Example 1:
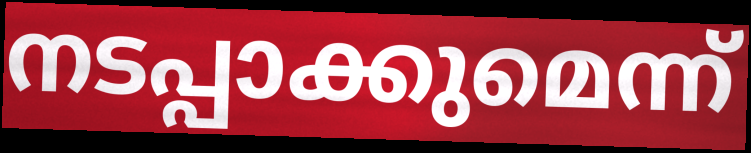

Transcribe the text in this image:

നടപ്പാക്കുമെന്ന്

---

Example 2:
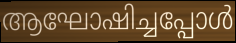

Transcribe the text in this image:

ആഘോഷിച്ചപ്പോൾ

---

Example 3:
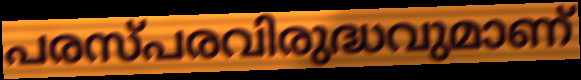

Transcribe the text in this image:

പരസ്പരവിരുദ്ധവുമാണ്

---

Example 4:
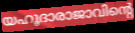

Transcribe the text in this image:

യഹൂദാരാജാവിന്റെ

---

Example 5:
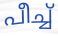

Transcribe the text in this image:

പീച്ച്